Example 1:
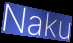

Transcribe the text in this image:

Naku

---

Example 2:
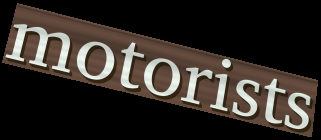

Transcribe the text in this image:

motorists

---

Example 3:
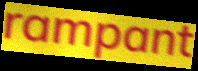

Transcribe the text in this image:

rampant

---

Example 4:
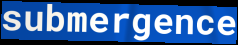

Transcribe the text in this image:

submergence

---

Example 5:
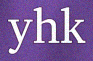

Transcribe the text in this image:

yhk